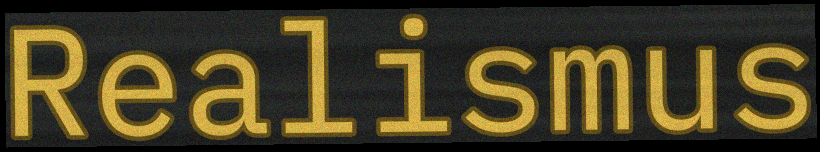
Realismus